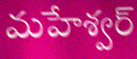
మహేశ్వర్